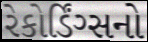
રેકોર્ડિંગ્સનો